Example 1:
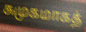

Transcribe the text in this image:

சுமுகமாகத்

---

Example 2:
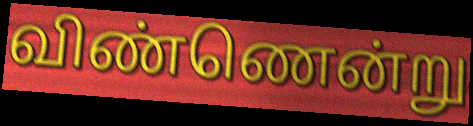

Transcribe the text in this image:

விண்ணென்று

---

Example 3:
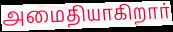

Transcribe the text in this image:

அமைதியாகிறார்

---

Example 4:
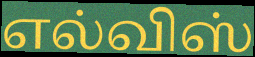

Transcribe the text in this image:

எல்விஸ்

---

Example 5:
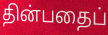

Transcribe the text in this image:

தின்பதைப்